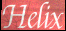
Helix